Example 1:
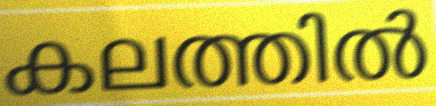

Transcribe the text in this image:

കലത്തിൽ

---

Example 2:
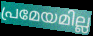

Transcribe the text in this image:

പ്രമേയമില്ല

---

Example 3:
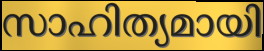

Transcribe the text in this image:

സാഹിത്യമായി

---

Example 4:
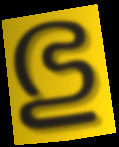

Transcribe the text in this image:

ഭു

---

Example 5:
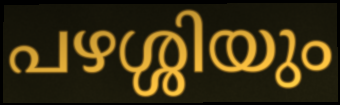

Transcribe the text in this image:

പഴശ്ശിയും